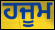
ਹਜੂਮ